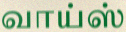
வாய்ஸ்